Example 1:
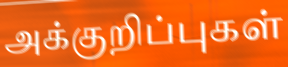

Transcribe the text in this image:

அக்குறிப்புகள்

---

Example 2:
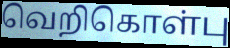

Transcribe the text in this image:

வெறிகொள்பு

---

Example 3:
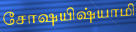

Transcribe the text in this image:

சோஷயிஷ்யாமி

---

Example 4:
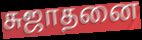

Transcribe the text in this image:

சுஜாதனை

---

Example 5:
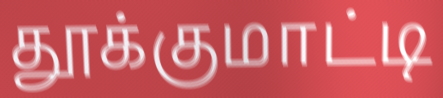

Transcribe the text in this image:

தூக்குமாட்டி